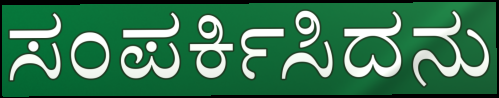
ಸಂಪರ್ಕಿಸಿದನು